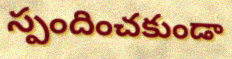
స్పందించకుండా